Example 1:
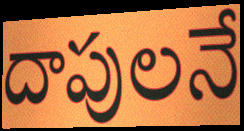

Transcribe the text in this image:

దాపులనే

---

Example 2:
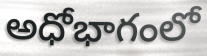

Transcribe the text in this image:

అధోభాగంలో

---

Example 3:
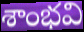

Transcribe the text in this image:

శాంభవి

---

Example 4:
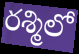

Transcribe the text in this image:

రశ్మిలో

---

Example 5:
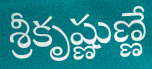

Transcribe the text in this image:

శ్రీకృష్ణుణ్ణే